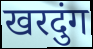
खरदुंग